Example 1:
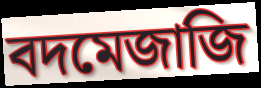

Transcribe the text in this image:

বদমেজাজি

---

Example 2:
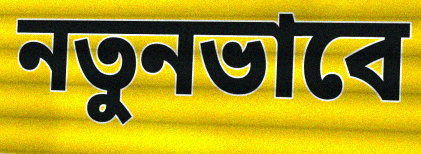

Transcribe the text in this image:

নতুনভাবে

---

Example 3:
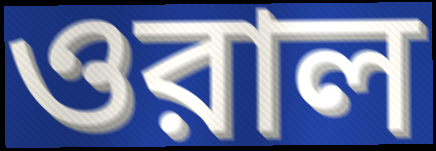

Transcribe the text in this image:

ওরাল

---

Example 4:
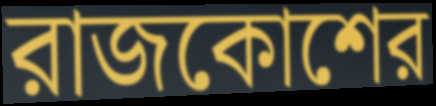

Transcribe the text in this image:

রাজকোশের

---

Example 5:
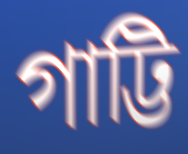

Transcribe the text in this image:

গাট্টি